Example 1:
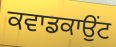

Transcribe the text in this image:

ਕਵਾਡਕਾਉਂਟ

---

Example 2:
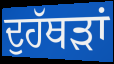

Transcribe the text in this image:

ਦੁਹੱਥੜਾਂ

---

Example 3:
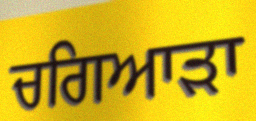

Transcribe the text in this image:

ਚਗਿਆੜਾ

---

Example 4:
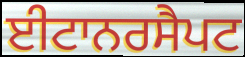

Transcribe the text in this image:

ਈਟਾਨਰਸੈਪਟ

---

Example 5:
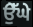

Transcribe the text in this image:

ਉੇੱਘੇ